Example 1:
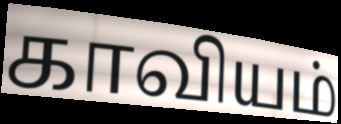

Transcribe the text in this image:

காவியம்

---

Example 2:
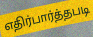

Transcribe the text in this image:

எதிர்பார்த்தபடி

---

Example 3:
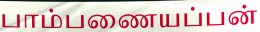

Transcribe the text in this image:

பாம்பணையப்பன்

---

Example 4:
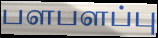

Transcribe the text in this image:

பளபளப்பு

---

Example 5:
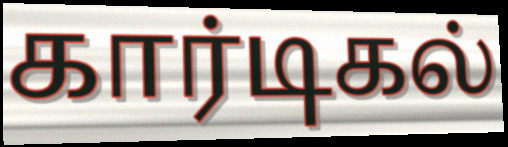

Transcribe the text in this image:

கார்டிகல்